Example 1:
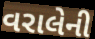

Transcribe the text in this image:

વરાલેની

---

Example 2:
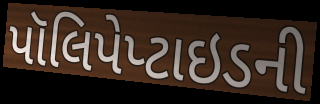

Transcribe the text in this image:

પૉલિપેપ્ટાઇડની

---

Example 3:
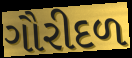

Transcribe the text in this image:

ગૌરીદળ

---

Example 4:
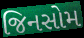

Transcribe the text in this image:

જિનસોમ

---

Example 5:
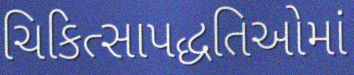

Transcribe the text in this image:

ચિકિત્સાપદ્ધતિઓમાં